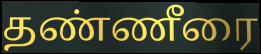
தண்ணீரை